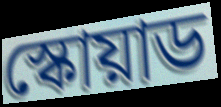
স্কোয়াড